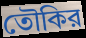
তৌকির